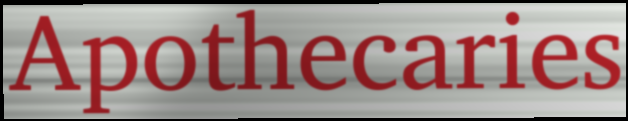
Apothecaries